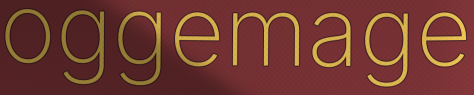
oggemage